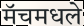
मॅचमधले